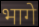
भागे